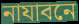
নাযাবনে